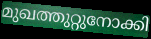
മുഖത്തുറ്റുനോക്കി